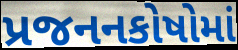
પ્રજનનકોષોમાં